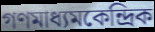
গণমাধ্যমকেন্দ্রিক